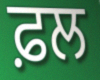
ਫ਼ਲ